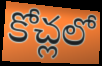
కోచ్లలో